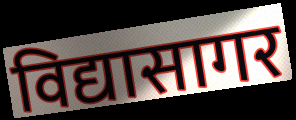
विद्यासागर